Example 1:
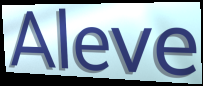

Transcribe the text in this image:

Aleve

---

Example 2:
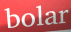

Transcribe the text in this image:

bolar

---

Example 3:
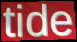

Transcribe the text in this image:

tide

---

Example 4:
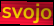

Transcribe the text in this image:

svojo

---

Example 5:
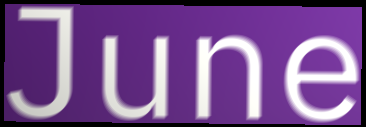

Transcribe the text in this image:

June